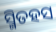
ସ୍ମିତହସ